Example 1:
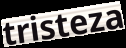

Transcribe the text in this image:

tristeza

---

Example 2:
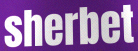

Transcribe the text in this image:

sherbet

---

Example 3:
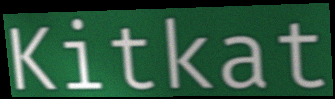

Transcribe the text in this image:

Kitkat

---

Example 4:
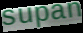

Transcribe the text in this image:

supan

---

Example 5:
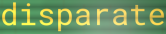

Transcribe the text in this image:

disparate